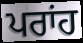
ਪਰਾਂਹ